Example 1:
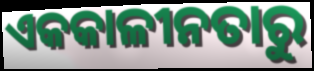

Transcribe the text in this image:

ଏକକାଳୀନତାରୁ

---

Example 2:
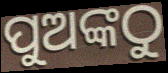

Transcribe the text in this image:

ପୁଅଙ୍କଠୁ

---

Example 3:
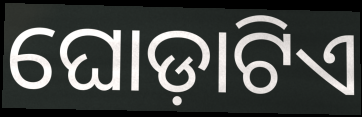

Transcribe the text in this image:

ଘୋଡ଼ାଟିଏ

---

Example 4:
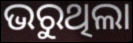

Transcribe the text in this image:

ଭରୁଥିଲା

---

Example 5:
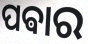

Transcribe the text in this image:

ପଵାର